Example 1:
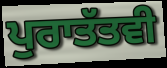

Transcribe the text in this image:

ਪੁਰਾਤੱਤਵੀ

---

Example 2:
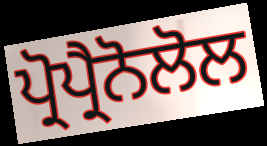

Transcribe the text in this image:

ਪ੍ਰੋਪ੍ਰੈਨੋਲੋਲ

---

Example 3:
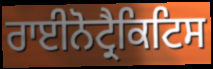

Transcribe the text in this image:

ਰਾਈਨੋਟ੍ਰੈਕਿਟਿਸ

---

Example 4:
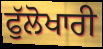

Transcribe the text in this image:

ਫੁੱਲੋਖਾਰੀ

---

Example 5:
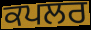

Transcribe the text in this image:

ਕਪਲਰ